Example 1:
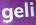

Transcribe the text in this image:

geli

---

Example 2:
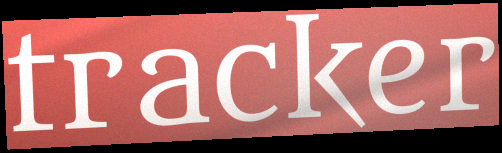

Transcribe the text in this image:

tracker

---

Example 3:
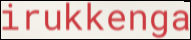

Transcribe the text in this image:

irukkenga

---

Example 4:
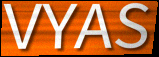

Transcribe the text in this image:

VYAS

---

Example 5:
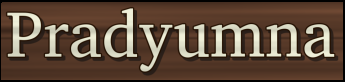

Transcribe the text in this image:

Pradyumna